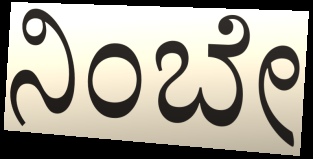
ನಿಂಬೇ